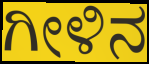
ಗೀಳಿನ